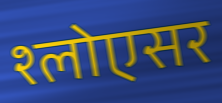
श्लोएसर